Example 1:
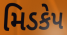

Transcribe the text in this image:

મિડકેપ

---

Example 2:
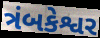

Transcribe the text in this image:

ત્રંબકેશ્વર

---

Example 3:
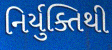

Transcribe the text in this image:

નિર્યુક્તિથી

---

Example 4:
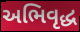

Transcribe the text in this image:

અભિવૃદ્ધ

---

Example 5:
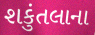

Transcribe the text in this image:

શકુંતલાના